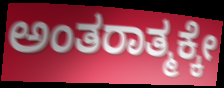
ಅಂತರಾತ್ಮಕ್ಕೇ